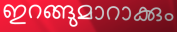
ഇറങ്ങുമാറാക്കും